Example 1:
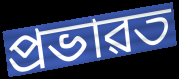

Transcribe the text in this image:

প্ৰভাৱত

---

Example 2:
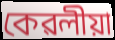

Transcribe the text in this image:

কেৱলীয়া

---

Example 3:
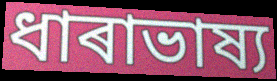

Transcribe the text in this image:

ধাৰাভাষ্য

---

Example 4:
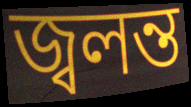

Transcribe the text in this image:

জ্বলন্ত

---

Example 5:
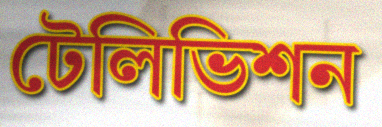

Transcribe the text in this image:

টেলিভিশন